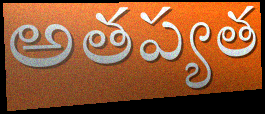
అతప్యత